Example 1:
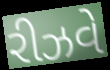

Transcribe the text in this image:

રીઝવે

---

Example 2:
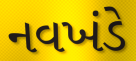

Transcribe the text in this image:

નવખંડે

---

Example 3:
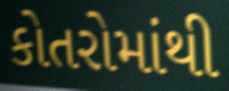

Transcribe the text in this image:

કોતરોમાંથી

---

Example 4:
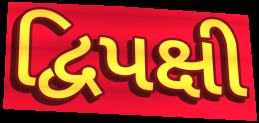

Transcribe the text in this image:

દ્વિપક્ષી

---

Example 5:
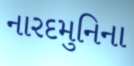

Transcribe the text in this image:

નારદમુનિના